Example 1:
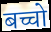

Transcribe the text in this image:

बच्चो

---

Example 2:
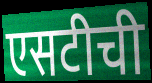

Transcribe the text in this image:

एसटीची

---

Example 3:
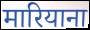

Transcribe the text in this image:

मारियाना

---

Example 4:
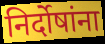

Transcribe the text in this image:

निर्दोषांना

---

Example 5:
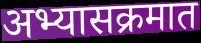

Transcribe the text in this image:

अभ्यासक्रमात